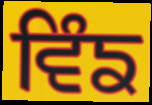
ਵਿੰਙ